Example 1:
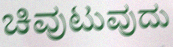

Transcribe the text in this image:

ಚಿವುಟುವುದು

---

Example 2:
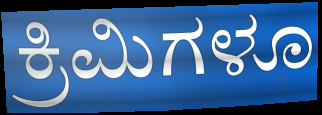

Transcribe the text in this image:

ಕ್ರಿಮಿಗಳೂ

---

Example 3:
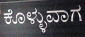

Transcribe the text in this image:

ಕೊಳ್ಳುವಾಗ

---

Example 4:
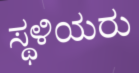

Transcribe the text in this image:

ಸ್ಥಳಿಯರು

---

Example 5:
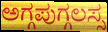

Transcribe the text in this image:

ಅಗ್ಗಪುಗ್ಗಲಸ್ಸ